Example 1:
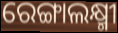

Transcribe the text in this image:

ରେଙ୍ଗାଲକ୍ଷ୍ମୀ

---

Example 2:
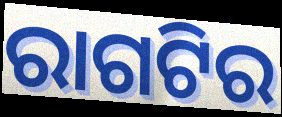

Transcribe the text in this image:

ରାଗଟିର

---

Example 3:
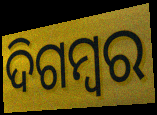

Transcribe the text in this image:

ଦିଗମ୍ବର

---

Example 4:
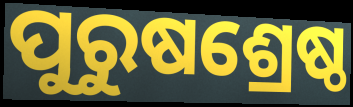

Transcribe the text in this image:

ପୁରୁଷଶ୍ରେଷ୍ଠ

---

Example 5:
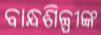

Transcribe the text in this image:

ବାନ୍ଧଶିଳ୍ପୀଙ୍କ